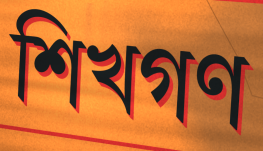
শিখগণ